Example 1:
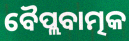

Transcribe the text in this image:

ବୈପ୍ଲବାତ୍ମକ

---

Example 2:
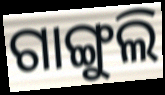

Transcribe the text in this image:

ଗାଙ୍ଗୁଲି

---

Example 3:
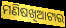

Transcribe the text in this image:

ମଣିଷଖିଆଟାର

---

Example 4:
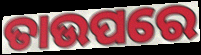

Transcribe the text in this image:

ତାଉପରେ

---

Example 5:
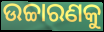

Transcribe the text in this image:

ଉଚ୍ଚାରଣକୁ